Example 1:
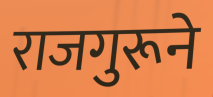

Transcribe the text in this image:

राजगुरूने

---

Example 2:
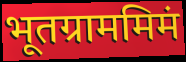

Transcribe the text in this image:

भूतग्राममिमं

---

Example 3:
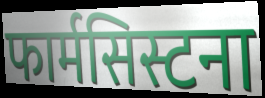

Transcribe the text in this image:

फार्मसिस्टना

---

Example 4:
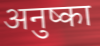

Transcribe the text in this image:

अनुष्का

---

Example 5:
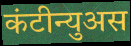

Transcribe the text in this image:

कंटीन्युअस